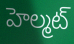
హెల్మట్